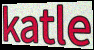
katle